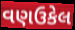
વણઉકેલ